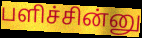
பளிச்சின்னு